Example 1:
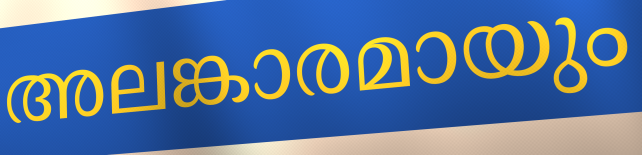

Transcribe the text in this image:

അലങ്കാരമായും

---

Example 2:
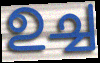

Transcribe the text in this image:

ഉച്ച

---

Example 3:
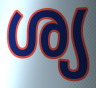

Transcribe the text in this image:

ശ്യ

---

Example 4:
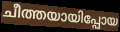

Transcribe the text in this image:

ചീത്തയായിപ്പോയ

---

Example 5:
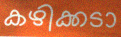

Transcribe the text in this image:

കഴിക്കടാ